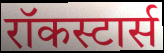
रॉकस्टार्स